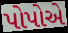
પોપોએ